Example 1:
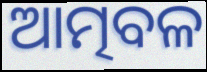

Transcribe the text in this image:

ଆତ୍ମବଳ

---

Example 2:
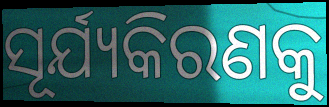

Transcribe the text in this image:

ସୂର୍ଯ୍ୟକିରଣକୁ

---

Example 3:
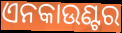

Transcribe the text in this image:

ଏନକାଉଣ୍ଟର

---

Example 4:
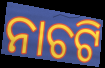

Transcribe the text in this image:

ନାଚଟି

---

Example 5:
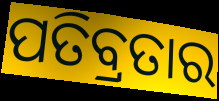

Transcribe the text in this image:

ପତିବ୍ରତାର